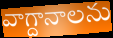
వాగ్దానాలను